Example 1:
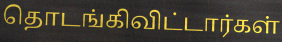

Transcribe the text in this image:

தொடங்கிவிட்டார்கள்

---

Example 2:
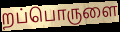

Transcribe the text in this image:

றப்பொருளை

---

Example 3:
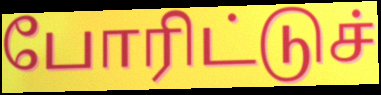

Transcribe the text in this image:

போரிட்டுச்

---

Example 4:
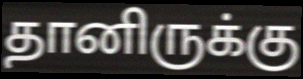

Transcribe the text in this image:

தானிருக்கு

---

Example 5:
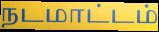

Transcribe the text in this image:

நடமாட்டம்